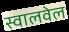
स्वालवेल